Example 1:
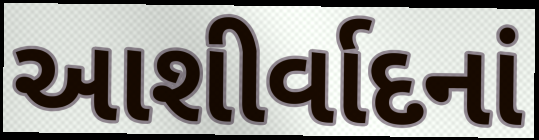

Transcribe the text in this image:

આશીર્વાદનાં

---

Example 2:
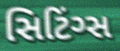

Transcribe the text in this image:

સિટિંગ્સ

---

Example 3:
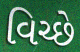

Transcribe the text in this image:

વિચ્છે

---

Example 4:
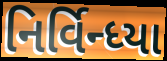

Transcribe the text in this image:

નિર્વિન્ધ્યા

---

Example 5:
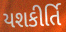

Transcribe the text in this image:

યશકીર્તિ